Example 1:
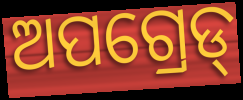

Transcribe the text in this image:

ଅପଗ୍ରେଡ୍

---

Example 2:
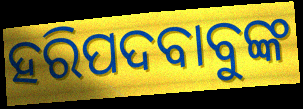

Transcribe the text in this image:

ହରିପଦବାବୁଙ୍କ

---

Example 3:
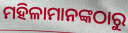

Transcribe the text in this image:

ମହିଳାମାନଙ୍କଠାରୁ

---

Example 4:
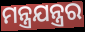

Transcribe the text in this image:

ମନ୍ତ୍ରଯନ୍ତ୍ରର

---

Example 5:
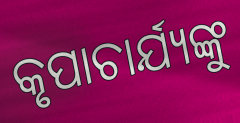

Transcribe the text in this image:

କୃପାଚାର୍ଯ୍ୟଙ୍କୁ